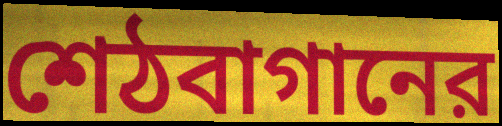
শেঠবাগানের